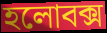
হলোবক্স